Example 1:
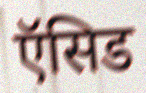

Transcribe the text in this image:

ऍसिड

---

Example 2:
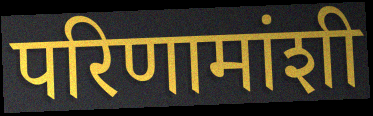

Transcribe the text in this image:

परिणामांशी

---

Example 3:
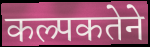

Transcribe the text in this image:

कल्पकतेने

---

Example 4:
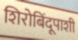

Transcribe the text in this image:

शिरोबिंदूपाशी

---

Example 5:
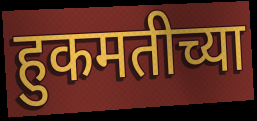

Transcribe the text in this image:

हुकमतीच्या